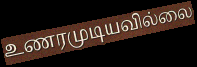
உணரமுடியவில்லை